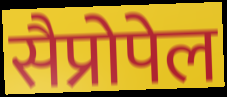
सैप्रोपेल